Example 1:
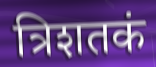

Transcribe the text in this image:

त्रिशतकं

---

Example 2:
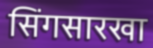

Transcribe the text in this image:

सिंगसारखा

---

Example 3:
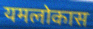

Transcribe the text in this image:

यमलोकास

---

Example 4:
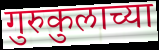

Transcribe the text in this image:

गुरुकुलाच्या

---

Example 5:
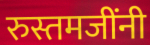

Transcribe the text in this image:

रुस्तमजींनी